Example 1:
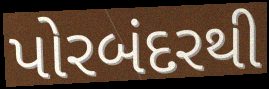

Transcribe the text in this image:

પોરબંદરથી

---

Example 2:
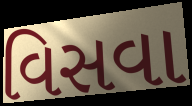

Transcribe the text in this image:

વિસવા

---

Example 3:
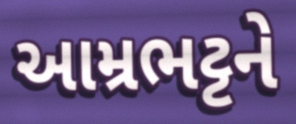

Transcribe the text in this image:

આમ્રભટ્ટને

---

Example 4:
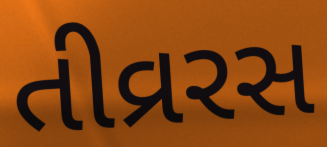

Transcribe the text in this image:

તીવ્રરસ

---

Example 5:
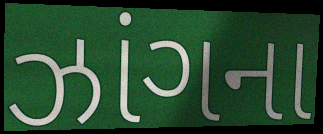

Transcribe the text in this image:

ઝાંગના